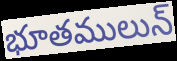
భూతములున్